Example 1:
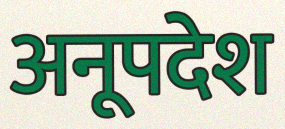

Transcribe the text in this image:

अनूपदेश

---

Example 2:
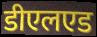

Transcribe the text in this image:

डीएलएड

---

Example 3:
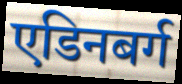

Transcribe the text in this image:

एडिनबर्ग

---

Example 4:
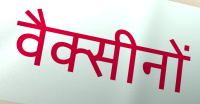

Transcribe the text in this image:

वैक्सीनों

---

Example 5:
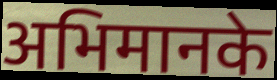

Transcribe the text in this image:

अभिमानके